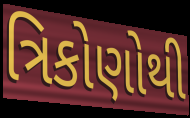
ત્રિકોણોથી